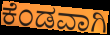
ಕೆಂಡವಾಗಿ